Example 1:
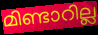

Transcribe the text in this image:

മിണ്ടാറില്ല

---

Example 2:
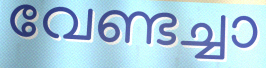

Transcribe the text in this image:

വേണ്ടച്ചാ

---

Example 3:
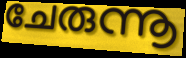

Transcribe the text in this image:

ചേരുന്നൂ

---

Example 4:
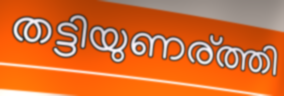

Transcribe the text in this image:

തട്ടിയുണര്ത്തി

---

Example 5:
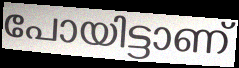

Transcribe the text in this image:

പോയിട്ടാണ്